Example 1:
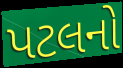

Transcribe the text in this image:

પટલનો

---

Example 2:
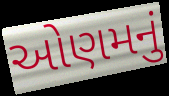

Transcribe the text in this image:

ઓણમનું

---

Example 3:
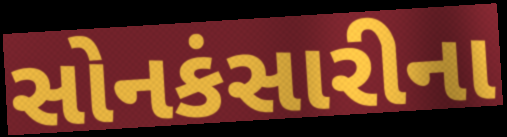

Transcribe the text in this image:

સોનકંસારીના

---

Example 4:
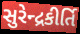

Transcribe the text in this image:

સુરેન્દ્રકીર્તિ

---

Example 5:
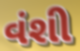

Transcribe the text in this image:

વંશી